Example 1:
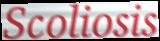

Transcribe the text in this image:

Scoliosis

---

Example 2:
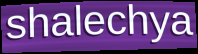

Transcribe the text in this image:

shalechya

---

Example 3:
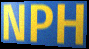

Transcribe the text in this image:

NPH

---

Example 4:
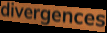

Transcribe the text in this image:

divergences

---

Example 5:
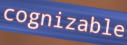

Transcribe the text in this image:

cognizable